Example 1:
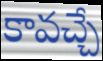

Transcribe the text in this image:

కావచ్చే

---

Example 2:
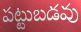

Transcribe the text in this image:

పట్టుబడవు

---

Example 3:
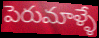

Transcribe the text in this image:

పెరుమాళ్ళే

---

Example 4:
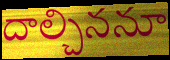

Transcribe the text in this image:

దాల్చిననూ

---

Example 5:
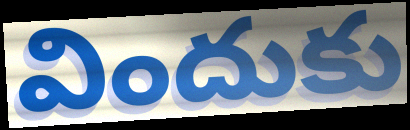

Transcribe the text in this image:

విందుకు